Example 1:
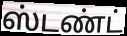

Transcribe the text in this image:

ஸ்டண்ட்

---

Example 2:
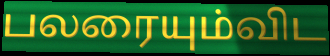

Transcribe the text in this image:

பலரையும்விட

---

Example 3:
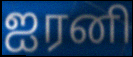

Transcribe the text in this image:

ஐரனி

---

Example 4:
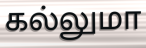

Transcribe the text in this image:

கல்லுமா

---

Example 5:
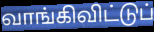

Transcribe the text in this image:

வாங்கிவிட்டுப்